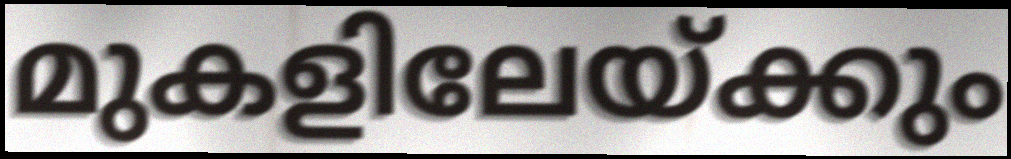
മുകളിലേയ്ക്കും